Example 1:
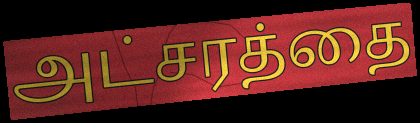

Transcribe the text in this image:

அட்சரத்தை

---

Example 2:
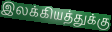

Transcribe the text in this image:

இலக்கியத்துக்கு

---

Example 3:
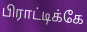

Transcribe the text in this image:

பிராட்டிக்கே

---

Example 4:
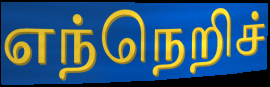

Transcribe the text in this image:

எந்நெறிச்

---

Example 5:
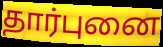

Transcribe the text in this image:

தார்புனை